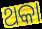
ଥକା